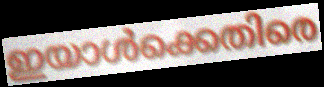
ഇയാൾക്കെതിരെ